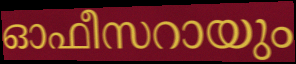
ഓഫീസറായും